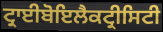
ਟ੍ਰਾਈਬੋਇਲੈਕਟ੍ਰੀਸਿਟੀ